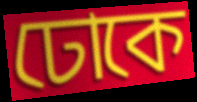
ঢোকে